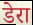
डेरा